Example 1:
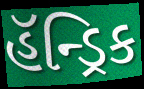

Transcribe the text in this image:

હૅન્ડ્રિક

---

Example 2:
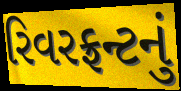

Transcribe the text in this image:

રિવરફ્રન્ટનું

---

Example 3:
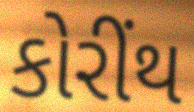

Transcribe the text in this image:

કોરીંથ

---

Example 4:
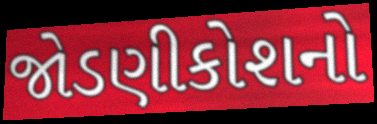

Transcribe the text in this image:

જોડણીકોશનો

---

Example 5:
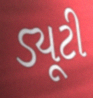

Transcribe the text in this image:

ડ્યૂટી